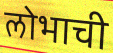
लोभाची